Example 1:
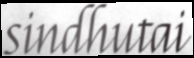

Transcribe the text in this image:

sindhutai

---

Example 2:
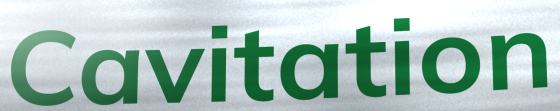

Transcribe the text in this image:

Cavitation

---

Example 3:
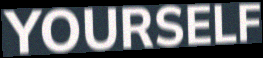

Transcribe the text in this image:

YOURSELF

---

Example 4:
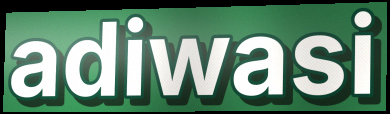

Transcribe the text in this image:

adiwasi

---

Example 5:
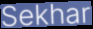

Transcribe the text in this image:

Sekhar